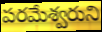
పరమేశ్వరుని